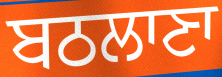
ਬਠਲਾਣਾ